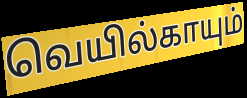
வெயில்காயும்